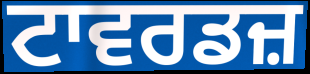
ਟਾਵਰਡਜ਼